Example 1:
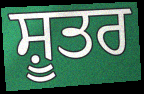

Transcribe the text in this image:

ਸ਼ੂਤਰ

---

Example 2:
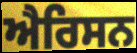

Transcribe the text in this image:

ਐਰਿਸਨ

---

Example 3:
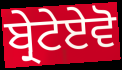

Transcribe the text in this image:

ਬ੍ਰੇਟੇਏਵੋ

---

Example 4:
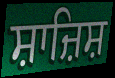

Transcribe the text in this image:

ਸ਼ਾਜ਼ਿਸ਼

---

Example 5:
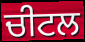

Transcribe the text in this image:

ਚੀਟਲ